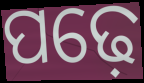
ପଢ଼େ